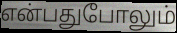
என்பதுபோலும்